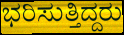
ಭರಿಸುತ್ತಿದ್ದರು